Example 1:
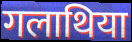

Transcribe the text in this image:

गलाथिया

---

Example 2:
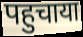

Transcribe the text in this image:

पहुचाया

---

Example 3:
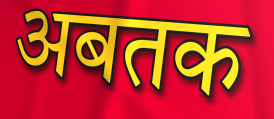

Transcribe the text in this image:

अबतक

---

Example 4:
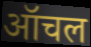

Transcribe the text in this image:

ऑचल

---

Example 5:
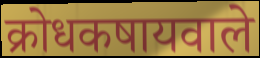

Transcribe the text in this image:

क्रोधकषायवाले